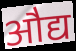
औद्य